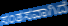
ಸಂತಸವಾಗಿದೆ